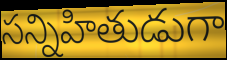
సన్నిహితుడుగా